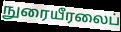
நுரையீரலைப்